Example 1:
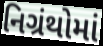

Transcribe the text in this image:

નિગ્રંથોમાં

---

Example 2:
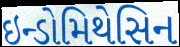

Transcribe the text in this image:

ઇન્ડોમિથેસિન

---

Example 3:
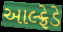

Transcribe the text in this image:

આલ્ફ્રેડે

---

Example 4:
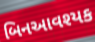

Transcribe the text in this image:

બિનઆવશ્યક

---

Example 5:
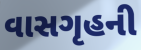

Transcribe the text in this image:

વાસગૃહની